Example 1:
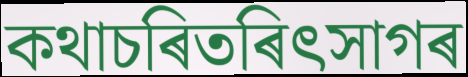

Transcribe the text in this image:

কথাচৰিতৰিৎসাগৰ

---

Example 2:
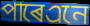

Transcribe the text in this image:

পাৰেএনে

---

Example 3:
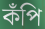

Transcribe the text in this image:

কঁপি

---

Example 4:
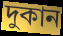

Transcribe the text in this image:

দুকান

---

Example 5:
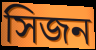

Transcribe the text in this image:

সিজন